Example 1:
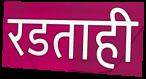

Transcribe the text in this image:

रडताही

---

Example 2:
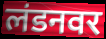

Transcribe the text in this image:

लंडनवर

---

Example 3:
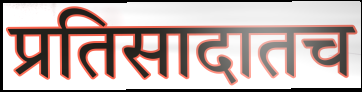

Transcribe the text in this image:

प्रतिसादातच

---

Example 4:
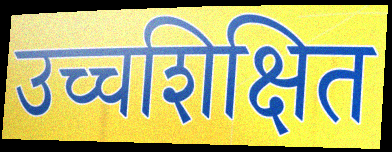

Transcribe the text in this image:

उच्चशिक्षित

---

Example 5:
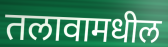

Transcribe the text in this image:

तलावामधील